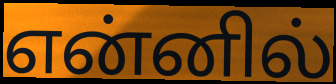
என்னில்